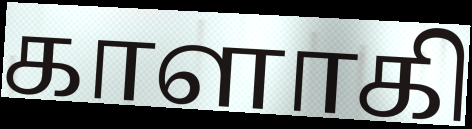
காளாகி